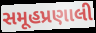
સમૂહપ્રણાલી